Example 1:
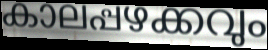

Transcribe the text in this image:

കാലപ്പഴക്കവും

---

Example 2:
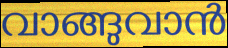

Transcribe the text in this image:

വാങ്ങുവാൻ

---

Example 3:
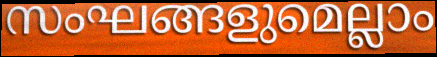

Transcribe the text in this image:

സംഘങ്ങളുമെല്ലാം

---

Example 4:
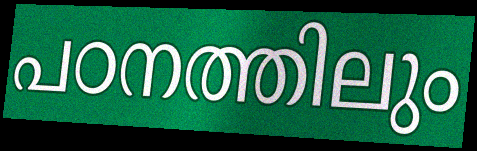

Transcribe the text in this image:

പഠനത്തിലും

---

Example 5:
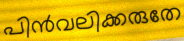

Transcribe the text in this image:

പിൻവലിക്കരുതേ